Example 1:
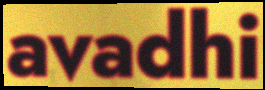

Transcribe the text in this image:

avadhi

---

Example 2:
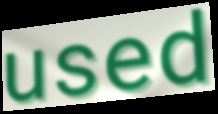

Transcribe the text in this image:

used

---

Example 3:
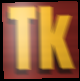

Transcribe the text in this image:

Tk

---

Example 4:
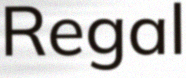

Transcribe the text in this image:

Regal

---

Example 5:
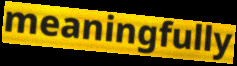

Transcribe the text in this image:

meaningfully